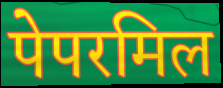
पेपरमिल